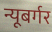
न्यूबर्गर